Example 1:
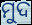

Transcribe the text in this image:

ମୁଦ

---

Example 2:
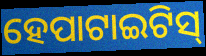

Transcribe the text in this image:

ହେପାଟାଇଟିସ୍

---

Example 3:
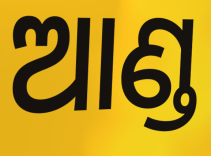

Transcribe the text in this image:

ଆଣ୍ଡ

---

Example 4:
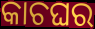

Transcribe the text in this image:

କାଚଘର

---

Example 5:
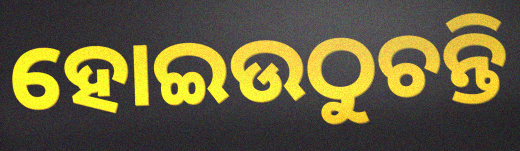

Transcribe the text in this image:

ହୋଇଉଠୁଚନ୍ତି